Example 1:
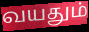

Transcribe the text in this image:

வயதும்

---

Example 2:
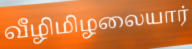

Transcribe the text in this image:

வீழிமிழலையார்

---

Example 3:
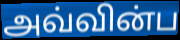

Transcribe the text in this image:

அவ்வின்ப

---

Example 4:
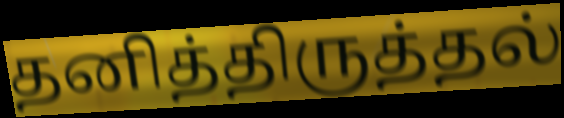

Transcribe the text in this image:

தனித்திருத்தல்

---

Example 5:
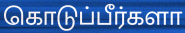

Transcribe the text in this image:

கொடுப்பீர்களா